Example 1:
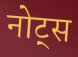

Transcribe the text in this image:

नोट्‌स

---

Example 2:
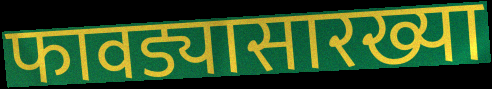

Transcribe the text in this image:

फावड्यासारख्या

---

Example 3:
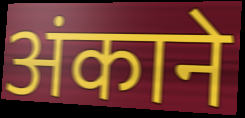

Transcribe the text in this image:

अंकाने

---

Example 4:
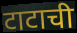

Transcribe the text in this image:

टाटाची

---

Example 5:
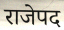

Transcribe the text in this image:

राजेपद